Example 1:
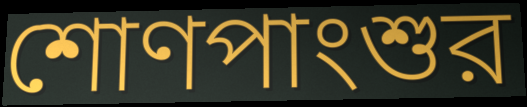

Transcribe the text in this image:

শোণপাংশুর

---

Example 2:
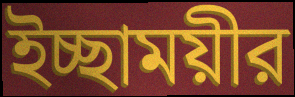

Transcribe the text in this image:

ইচ্ছাময়ীর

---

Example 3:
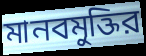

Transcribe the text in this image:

মানবমুক্তির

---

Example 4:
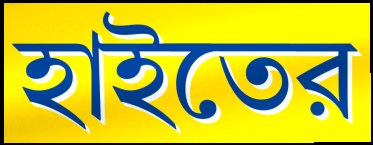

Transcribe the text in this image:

হাইতের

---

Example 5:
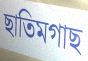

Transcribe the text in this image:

ছাতিমগাছ